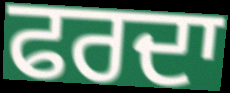
ਫਰਦਾ